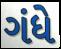
ગંધે